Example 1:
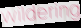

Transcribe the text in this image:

wildering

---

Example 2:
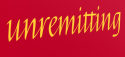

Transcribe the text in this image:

unremitting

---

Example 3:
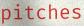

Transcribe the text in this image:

pitches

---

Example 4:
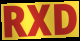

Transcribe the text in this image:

RXD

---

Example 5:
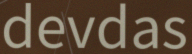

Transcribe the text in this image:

devdas